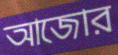
আজোর